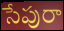
సేపురా